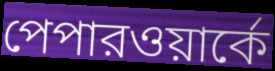
পেপারওয়ার্কে